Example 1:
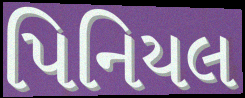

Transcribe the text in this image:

પિનિયલ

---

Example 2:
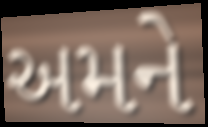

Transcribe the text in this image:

અમને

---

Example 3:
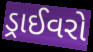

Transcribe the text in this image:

ડ્રાઈવરો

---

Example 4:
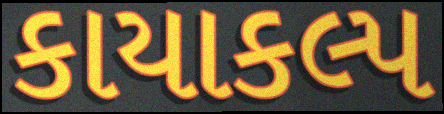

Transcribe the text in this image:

કાયાકલ્પ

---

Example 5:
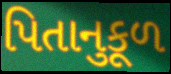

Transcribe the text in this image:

પિતાનુકૂળ